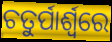
ଚତୁର୍ପାର୍ଶ୍ୱରେ